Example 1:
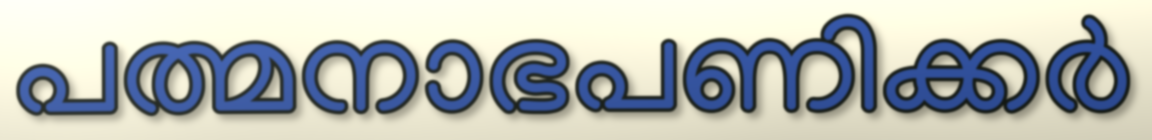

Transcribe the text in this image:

പത്മനാഭപണിക്കർ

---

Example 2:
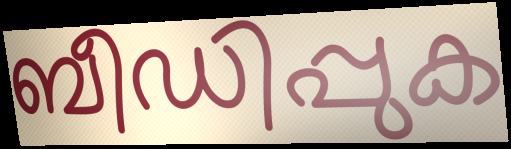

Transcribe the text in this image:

ബീഡിപ്പുക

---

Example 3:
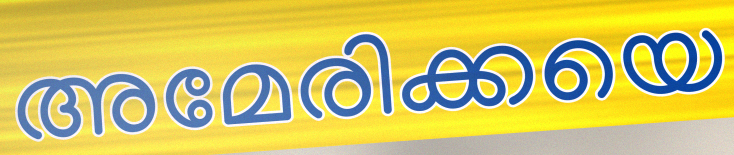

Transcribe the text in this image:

അമേരിക്കയെ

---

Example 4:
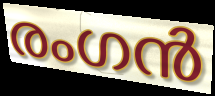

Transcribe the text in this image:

രംഗൻ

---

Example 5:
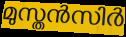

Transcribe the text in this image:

മുസ്തൻസിർ